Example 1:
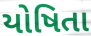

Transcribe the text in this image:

યોષિતા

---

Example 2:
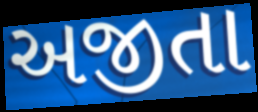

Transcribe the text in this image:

અજીતા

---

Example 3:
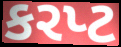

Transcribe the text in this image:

કરપ્ટ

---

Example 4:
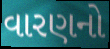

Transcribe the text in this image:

વારણનો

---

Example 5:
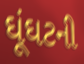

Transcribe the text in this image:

ઘૂંઘટની